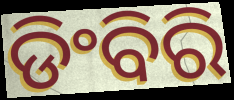
ଡିଂବିରି